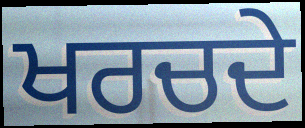
ਖਰਚਦੇ